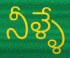
నీళ్ళే